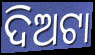
ଦିଅଟା